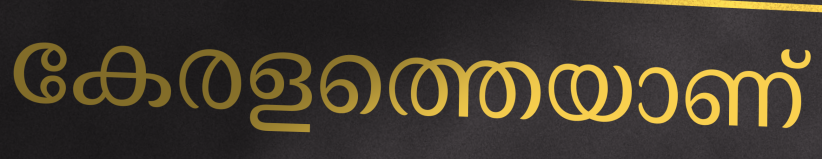
കേരളത്തെയാണ്